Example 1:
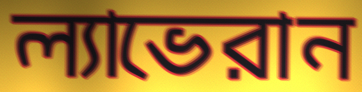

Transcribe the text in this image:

ল্যাভেরান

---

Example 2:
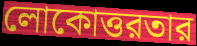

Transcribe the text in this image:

লোকোত্তরতার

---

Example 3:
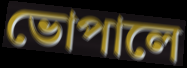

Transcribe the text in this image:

ভোপালে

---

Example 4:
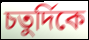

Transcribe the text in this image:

চতুর্দিকে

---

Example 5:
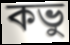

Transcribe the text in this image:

কভু